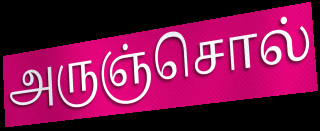
அருஞ்சொல்